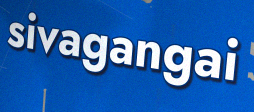
sivagangai